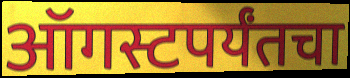
ऑगस्टपर्यंतचा